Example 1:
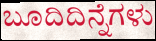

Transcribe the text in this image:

ಬೂದಿದಿನ್ನೆಗಳು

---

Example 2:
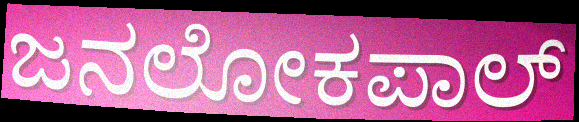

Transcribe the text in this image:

ಜನಲೋಕಪಾಲ್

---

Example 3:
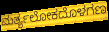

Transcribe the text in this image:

ಮರ್ತ್ಯಲೋಕದೊಳಗಣ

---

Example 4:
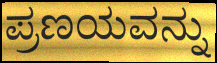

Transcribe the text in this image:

ಪ್ರಣಯವನ್ನು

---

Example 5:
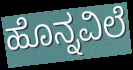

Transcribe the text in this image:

ಹೊನ್ನವಿಲೆ